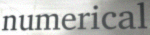
numerical